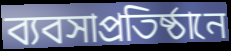
ব্যবসাপ্রতিষ্ঠানে